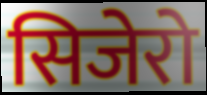
सिजेरो